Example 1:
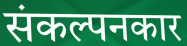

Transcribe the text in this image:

संकल्पनकार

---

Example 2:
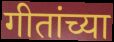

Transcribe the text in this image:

गीतांच्या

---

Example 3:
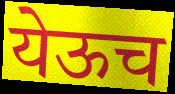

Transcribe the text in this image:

येऊच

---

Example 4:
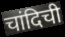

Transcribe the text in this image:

चांदिची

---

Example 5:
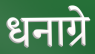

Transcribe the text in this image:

धनाग्रे